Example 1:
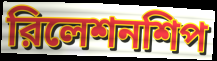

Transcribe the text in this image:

রিলেশনশিপ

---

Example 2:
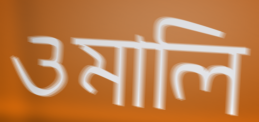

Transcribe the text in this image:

ওমালি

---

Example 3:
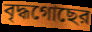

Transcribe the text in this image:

বৃদ্ধগোছের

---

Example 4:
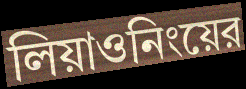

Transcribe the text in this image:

লিয়াওনিংয়ের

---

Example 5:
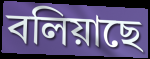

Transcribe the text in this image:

বলিয়াছে